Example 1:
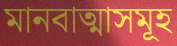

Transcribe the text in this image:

মানবাত্মাসমূহ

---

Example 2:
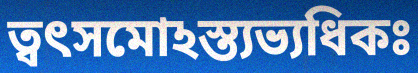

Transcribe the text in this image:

ত্বৎসমোঽস্ত্যভ্যধিকঃ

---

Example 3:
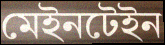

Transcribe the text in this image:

মেইনটেইন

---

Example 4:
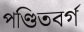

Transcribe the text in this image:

পণ্ডিতবর্গ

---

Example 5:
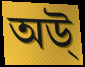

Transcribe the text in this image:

অউ্